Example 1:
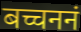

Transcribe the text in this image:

बच्चननं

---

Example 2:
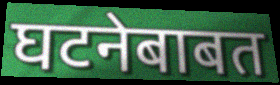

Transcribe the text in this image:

घटनेबाबत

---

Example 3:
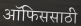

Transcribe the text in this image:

ऑफिससाठी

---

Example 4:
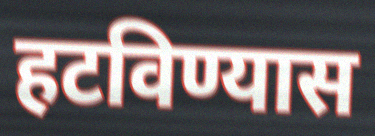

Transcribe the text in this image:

हटविण्यास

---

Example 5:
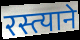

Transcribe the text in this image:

रस्त्याने